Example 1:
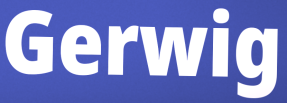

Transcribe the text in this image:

Gerwig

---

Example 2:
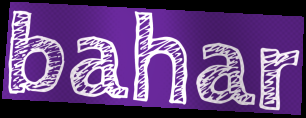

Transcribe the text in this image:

bahar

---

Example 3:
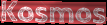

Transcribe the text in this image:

Kosmos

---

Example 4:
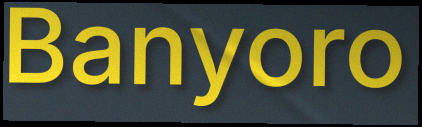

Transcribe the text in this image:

Banyoro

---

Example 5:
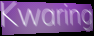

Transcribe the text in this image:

Kwaring